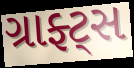
ગ્રાફ્ટ્સ